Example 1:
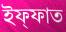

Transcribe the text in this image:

ইফ্ফাত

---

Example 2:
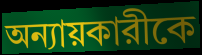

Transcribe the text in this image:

অন্যায়কারীকে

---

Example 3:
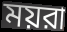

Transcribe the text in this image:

ময়রা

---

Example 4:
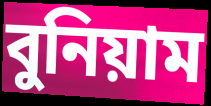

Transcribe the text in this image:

বুনিয়াম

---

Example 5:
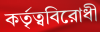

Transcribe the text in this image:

কর্তৃত্ববিরোধী